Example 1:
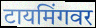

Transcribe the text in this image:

टायमिंगवर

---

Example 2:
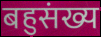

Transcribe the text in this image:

बहुसंख्य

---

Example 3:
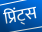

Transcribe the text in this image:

प्रिंट्स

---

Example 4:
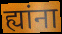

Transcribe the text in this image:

ह्यांना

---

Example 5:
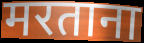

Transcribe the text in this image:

मरताना